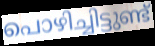
പൊഴിച്ചിട്ടുണ്ട്